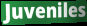
Juveniles